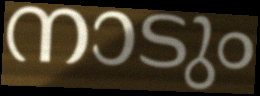
നാടും